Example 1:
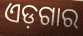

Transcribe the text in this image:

ଏଡ଼ଗାର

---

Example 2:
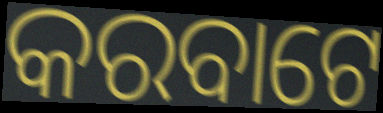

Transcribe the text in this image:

କରବାଟେ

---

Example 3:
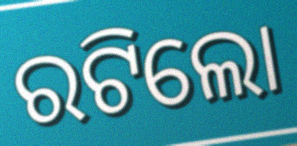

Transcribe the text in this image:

ରଟିଲୋ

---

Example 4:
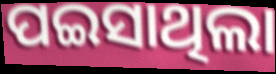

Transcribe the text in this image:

ପଇସାଥିଲା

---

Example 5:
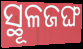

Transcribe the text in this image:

ସ୍ଥୂଳଜଙ୍ଘ